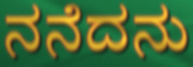
ನನೆದನು